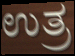
ಉತ್ರ